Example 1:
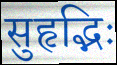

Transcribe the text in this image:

सुहृद्भिः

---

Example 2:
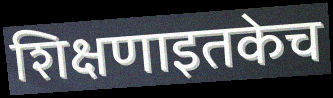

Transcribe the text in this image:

शिक्षणाइतकेच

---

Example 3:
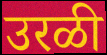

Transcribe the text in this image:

उरळी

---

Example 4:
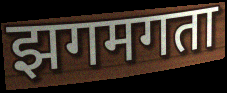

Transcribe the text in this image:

झगमगता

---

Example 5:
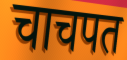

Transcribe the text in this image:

चाचपत